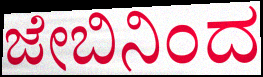
ಜೇಬಿನಿಂದ